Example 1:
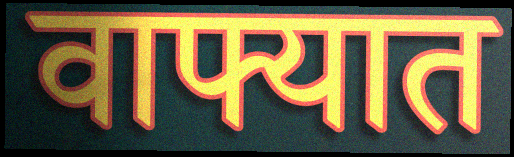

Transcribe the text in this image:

वाफ्यात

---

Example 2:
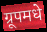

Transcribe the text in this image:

ग्रूपमधे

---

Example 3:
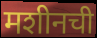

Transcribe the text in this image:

मशीनची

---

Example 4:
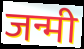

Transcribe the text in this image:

जन्मी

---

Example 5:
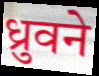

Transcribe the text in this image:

ध्रुवने